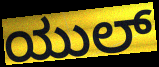
ಯುಲ್